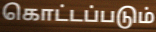
கொட்டப்படும்